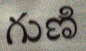
గుణి